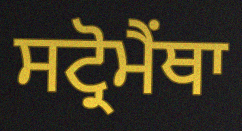
ਸਟ੍ਰੋਮੈਂਥਾ